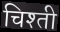
चिश्ती